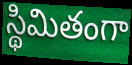
స్థిమితంగా